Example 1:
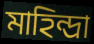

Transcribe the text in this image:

মাহিন্দ্রা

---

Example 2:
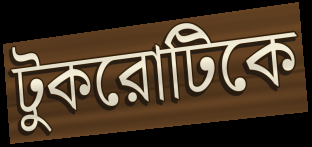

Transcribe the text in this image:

টুকরোটিকে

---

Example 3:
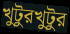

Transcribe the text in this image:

খুটুরখুটুর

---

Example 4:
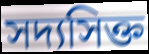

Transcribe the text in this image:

সদ্যসিক্ত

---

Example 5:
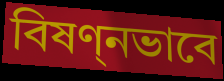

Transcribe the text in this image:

বিষণ্নভাবে